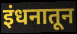
इंधनातून